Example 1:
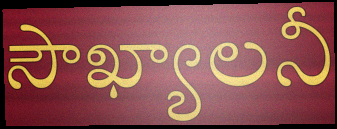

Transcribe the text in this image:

సౌఖ్యాలనీ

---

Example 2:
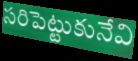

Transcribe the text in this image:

సరిపెట్టుకునేవి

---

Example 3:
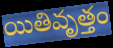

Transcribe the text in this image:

యితివృత్తం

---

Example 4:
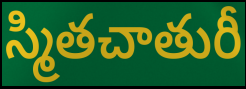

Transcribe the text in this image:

స్మితచాతురీ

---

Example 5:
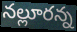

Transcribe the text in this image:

నల్లూరన్న